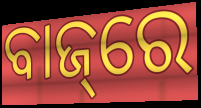
ବାଜ୍‌ରେ